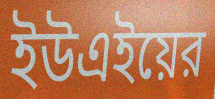
ইউএইয়ের